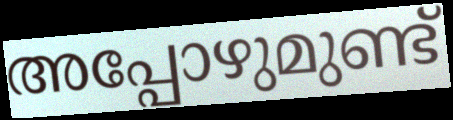
അപ്പോഴുമുണ്ട്